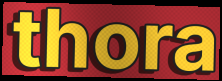
thora